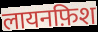
लायनफ़िश